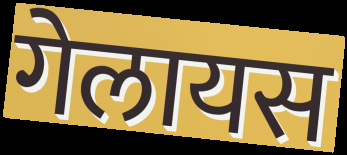
गेलायस